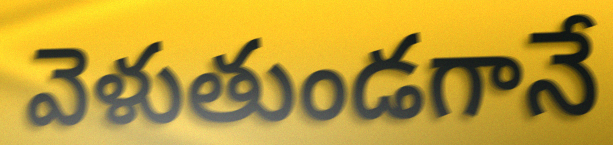
వెళుతుండగానే